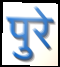
पुरे